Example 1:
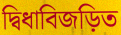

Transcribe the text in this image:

দ্বিধাবিজড়িত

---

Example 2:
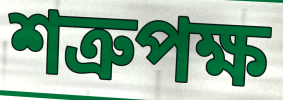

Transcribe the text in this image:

শত্রুপক্ষ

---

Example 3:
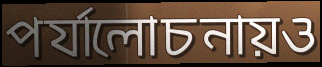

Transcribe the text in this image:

পর্যালোচনায়ও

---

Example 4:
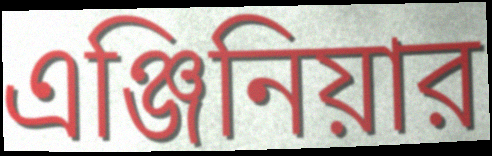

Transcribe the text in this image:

এঞ্জিনিয়ার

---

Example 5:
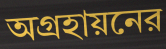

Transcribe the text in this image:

অগ্রহায়নের